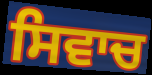
ਸਿਵਾਚ